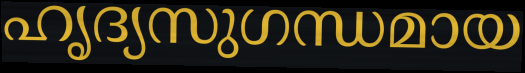
ഹൃദ്യസുഗന്ധമായ